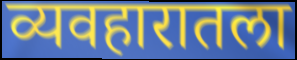
व्यवहारातला